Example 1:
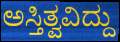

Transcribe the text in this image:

ಅಸ್ತಿತ್ವವಿದ್ದು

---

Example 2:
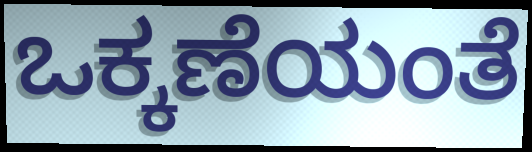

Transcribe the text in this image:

ಒಕ್ಕಣೆಯಂತೆ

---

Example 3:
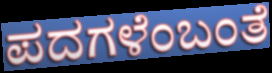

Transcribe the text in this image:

ಪದಗಳೆಂಬಂತೆ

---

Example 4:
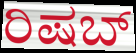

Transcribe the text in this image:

ರಿಷಬ್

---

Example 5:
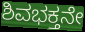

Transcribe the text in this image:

ಶಿವಭಕ್ತನೇ